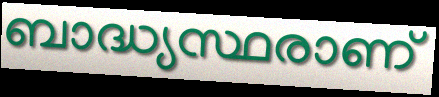
ബാദ്ധ്യസ്ഥരാണ്